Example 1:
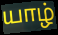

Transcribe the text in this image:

யாழ்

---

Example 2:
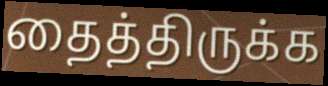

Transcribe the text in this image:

தைத்திருக்க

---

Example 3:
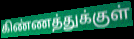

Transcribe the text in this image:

கிண்ணத்துக்குள்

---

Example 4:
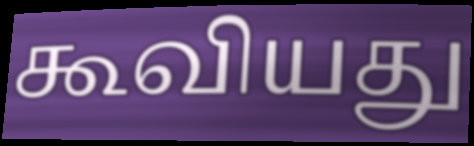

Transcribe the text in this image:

கூவியது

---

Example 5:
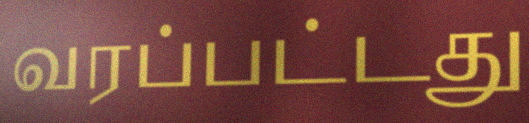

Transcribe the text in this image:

வரப்பட்டது